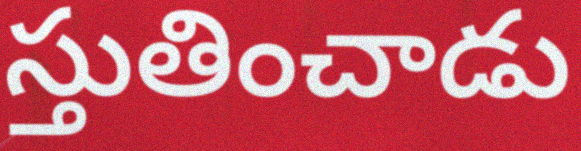
స్తుతించాడు